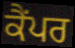
ਕੈਂਪਰ